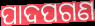
ପାଦପଗଣ